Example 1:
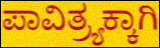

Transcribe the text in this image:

ಪಾವಿತ್ರ್ಯಕ್ಕಾಗಿ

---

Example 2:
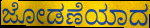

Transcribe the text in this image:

ಜೋಡಣೆಯಾದ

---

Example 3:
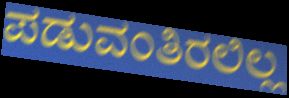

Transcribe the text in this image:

ಪಡುವಂತಿರಲಿಲ್ಲ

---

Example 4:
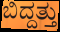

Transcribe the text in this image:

ಬಿದ್ದತ್ತು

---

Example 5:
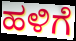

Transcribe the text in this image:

ಹಳಿಗೆ